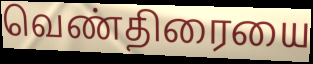
வெண்திரையை